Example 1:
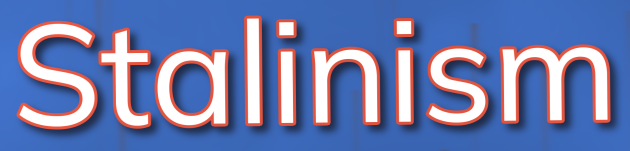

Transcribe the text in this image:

Stalinism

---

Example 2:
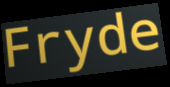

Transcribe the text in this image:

Fryde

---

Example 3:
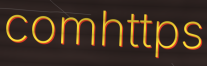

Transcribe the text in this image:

comhttps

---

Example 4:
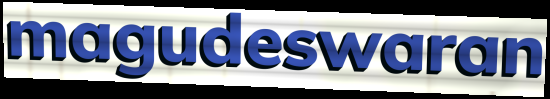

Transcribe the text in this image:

magudeswaran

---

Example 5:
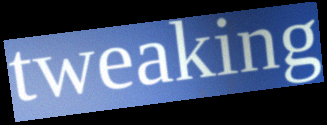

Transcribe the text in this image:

tweaking